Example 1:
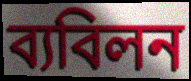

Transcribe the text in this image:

ব্যবিলন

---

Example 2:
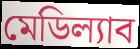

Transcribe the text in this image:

মেডিল্যাব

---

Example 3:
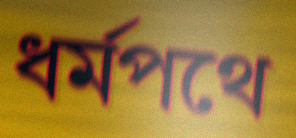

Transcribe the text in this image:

ধর্মপথে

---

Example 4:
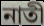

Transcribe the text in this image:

নাতী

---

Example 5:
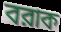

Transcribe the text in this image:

বরাক